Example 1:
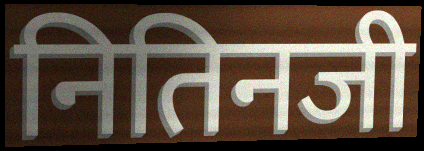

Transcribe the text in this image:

नितिनजी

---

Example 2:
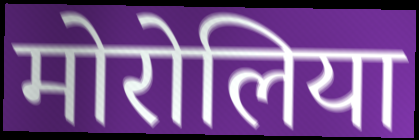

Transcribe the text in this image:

मोरोलिया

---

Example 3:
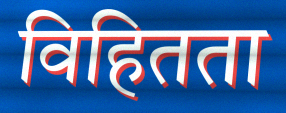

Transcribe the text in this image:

विहितता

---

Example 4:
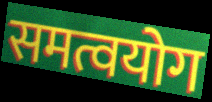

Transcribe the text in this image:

समत्वयोग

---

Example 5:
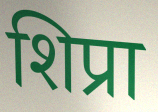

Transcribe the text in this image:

शिप्रा